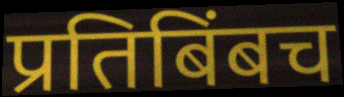
प्रतिबिंबच